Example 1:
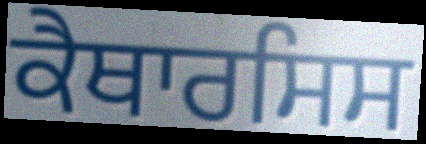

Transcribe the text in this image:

ਕੈਥਾਰਸਿਸ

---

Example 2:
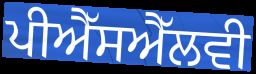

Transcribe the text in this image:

ਪੀਐੱਸਐੱਲਵੀ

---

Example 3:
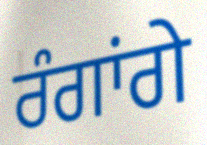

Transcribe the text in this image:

ਰੰਗਾਂਗੇ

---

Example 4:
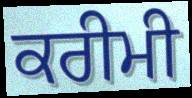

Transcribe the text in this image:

ਕਰੀਮੀ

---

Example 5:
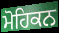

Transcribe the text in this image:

ਮੋਹਿਕਨ